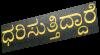
ಧರಿಸುತ್ತಿದ್ದಾರೆ